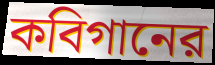
কবিগানের